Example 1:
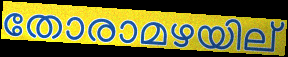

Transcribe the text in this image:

തോരാമഴയില്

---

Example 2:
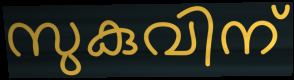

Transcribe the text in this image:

സുകുവിന്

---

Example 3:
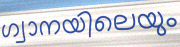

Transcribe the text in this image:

ഗ്വാനയിലെയും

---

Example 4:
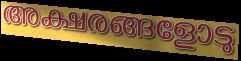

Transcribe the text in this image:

അക്ഷരങ്ങളോടു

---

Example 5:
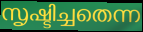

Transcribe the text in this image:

സൃഷ്ടിച്ചതെന്ന